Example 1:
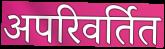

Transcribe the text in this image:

अपरिवर्तित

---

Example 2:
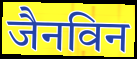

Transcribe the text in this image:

जैनविन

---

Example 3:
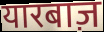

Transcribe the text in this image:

यारबाज़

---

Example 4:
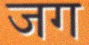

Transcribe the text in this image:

जग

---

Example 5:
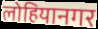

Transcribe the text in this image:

लोहियानगर